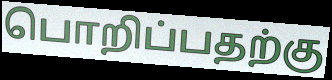
பொறிப்பதற்கு